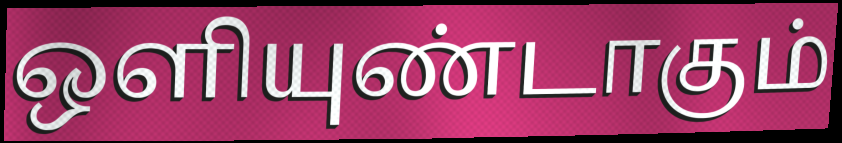
ஒளியுண்டாகும்